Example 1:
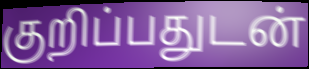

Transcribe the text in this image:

குறிப்பதுடன்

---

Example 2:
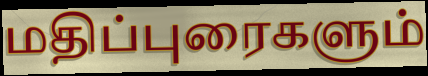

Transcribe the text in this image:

மதிப்புரைகளும்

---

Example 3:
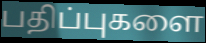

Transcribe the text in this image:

பதிப்புகளை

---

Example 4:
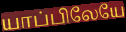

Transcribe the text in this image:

யாப்பிலேயே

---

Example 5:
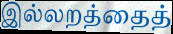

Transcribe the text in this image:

இல்லறத்தைத்